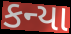
કન્યા